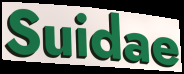
Suidae